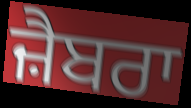
ਜ਼ੈਬਰਾ